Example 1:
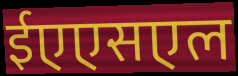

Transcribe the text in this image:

ईएएसएल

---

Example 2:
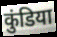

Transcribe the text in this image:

कुंडिया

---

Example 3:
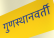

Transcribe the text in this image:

गुणस्थानवर्ती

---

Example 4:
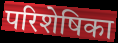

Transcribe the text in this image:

परिशेषिका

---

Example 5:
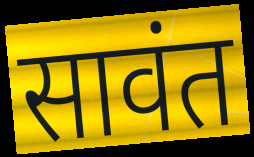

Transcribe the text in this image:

सावंत